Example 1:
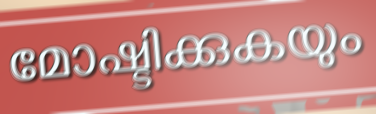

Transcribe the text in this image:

മോഷ്ടിക്കുകയും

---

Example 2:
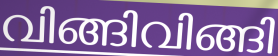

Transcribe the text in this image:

വിങ്ങിവിങ്ങി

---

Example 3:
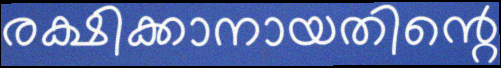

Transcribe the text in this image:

രക്ഷിക്കാനായതിന്റെ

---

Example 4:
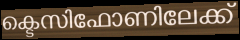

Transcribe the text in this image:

ക്ടെസിഫോണിലേക്ക്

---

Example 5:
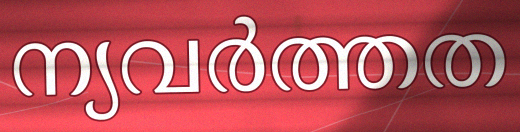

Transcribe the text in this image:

ന്യവർത്തത